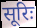
सूरिः